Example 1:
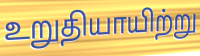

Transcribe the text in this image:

உறுதியாயிற்று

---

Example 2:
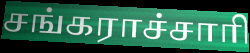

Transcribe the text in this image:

சங்கராச்சாரி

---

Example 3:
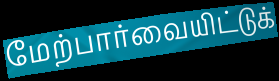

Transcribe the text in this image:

மேற்பார்வையிட்டுக்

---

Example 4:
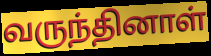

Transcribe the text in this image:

வருந்தினாள்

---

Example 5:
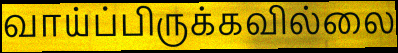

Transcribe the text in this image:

வாய்ப்பிருக்கவில்லை